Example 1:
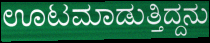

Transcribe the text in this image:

ಊಟಮಾಡುತ್ತಿದ್ದನು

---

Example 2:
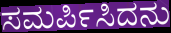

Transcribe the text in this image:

ಸಮರ್ಪಿಸಿದನು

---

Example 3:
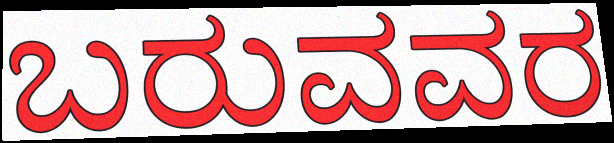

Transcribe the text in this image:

ಬರುವವರ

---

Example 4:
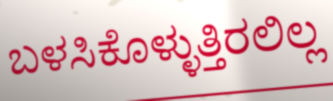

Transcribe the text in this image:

ಬಳಸಿಕೊಳ್ಳುತ್ತಿರಲಿಲ್ಲ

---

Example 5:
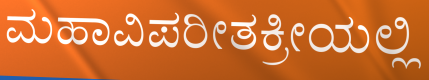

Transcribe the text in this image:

ಮಹಾವಿಪರೀತಕ್ರೀಯಲ್ಲಿ